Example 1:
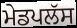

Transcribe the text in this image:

ਮੇਡਪਲੱਸ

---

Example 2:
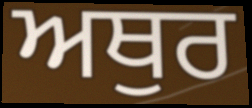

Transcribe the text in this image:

ਅਥੁਰ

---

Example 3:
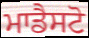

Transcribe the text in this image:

ਮਾਡੈਸਟੋ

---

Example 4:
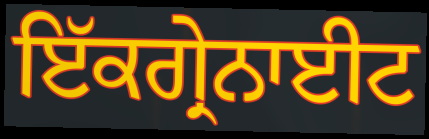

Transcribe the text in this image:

ਇੱਕਗ੍ਰੇਨਾਈਟ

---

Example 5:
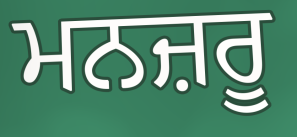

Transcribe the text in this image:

ਮਨਜ਼ਰੂ